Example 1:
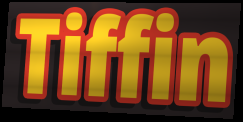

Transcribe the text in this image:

Tiffin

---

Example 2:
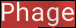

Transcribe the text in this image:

Phage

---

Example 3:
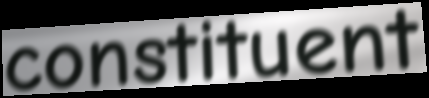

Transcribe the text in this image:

constituent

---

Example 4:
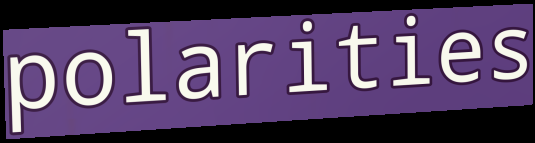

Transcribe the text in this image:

polarities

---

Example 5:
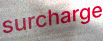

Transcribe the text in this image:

surcharge